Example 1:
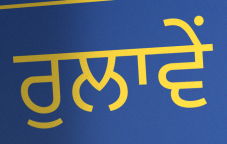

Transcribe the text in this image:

ਰੁਲਾਵੇਂ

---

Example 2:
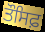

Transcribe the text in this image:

ਤੌਸਿਫ਼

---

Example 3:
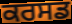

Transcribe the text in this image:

ਕਰਸਡ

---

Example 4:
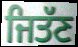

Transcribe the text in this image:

ਜਿਤੱਣ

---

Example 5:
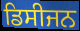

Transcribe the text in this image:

ਡਿਸੀਜਨ